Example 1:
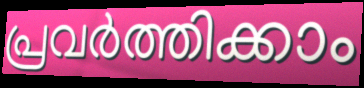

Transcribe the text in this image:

പ്രവർത്തിക്കാം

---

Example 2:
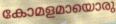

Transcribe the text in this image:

കോമളമായൊരു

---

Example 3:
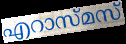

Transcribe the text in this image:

എറാസ്മസ്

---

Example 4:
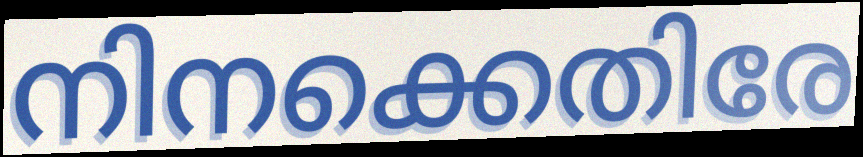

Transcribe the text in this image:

നിനക്കെതിരേ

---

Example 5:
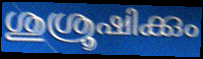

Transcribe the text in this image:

ശുശ്രൂഷിക്കും